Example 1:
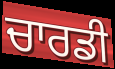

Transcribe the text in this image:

ਚਾਰਡੀ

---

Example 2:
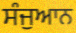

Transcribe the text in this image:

ਸੰਜੁਆਨ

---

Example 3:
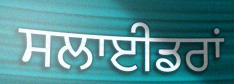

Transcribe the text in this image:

ਸਲਾਈਡਰਾਂ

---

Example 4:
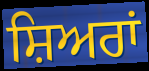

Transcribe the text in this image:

ਸ਼ਿਅਰਾਂ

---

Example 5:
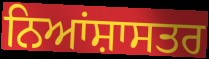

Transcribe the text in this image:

ਨਿਆਂਸ਼ਾਸਤਰ